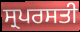
ਸ੍ਰਪਰਸਤੀ